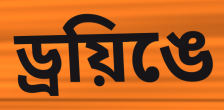
ড্রয়িঙে